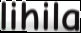
lihila